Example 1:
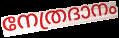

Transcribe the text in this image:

നേത്രദാനം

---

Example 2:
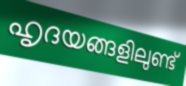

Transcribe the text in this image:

ഹൃദയങ്ങളിലുണ്ട്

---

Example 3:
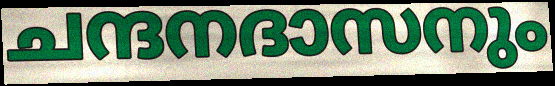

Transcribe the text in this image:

ചന്ദനദാസനും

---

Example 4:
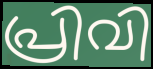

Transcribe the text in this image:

പ്രിവി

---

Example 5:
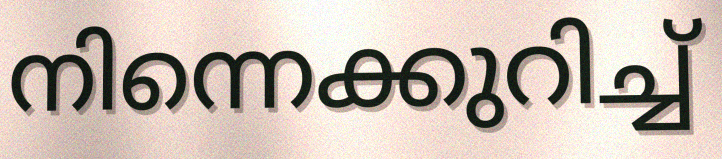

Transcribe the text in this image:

നിന്നെക്കുറിച്ച്